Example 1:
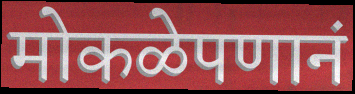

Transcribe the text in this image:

मोकळेपणानं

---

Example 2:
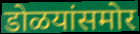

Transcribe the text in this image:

डोळयांसमोर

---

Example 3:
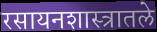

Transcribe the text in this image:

रसायनशास्त्रातले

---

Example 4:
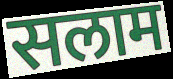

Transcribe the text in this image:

सलाम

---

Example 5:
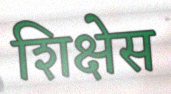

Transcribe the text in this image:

शिक्षेस